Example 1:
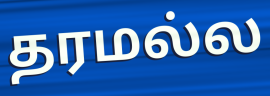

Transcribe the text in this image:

தரமல்ல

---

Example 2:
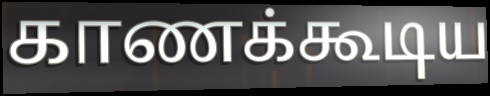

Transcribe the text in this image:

காணக்கூடிய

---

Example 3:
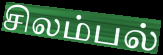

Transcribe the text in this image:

சிலம்பல்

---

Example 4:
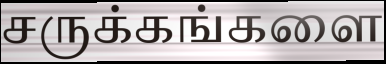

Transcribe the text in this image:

சருக்கங்களை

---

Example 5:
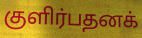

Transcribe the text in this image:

குளிர்பதனக்